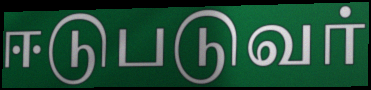
ஈடுபடுவர்